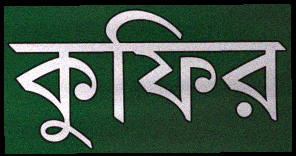
কুফির